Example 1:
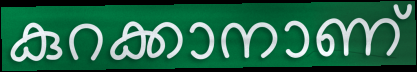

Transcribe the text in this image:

കുറക്കാനാണ്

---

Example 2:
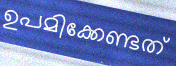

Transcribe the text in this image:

ഉപമിക്കേണ്ടത്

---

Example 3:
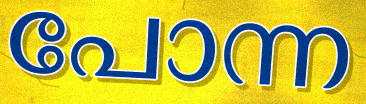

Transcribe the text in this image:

പോന്ന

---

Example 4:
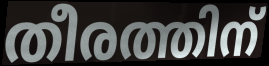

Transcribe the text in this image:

തീരത്തിന്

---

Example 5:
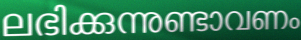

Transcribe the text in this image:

ലഭിക്കുന്നുണ്ടാവണം